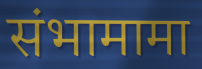
संभामामा